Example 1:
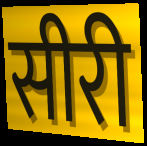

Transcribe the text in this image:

सीरी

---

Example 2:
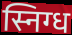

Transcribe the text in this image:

स्निग्ध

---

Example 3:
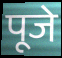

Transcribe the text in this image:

पूजे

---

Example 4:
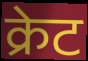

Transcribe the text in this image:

क्रेट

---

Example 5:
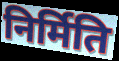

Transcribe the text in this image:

निर्मिति